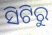
ସିଟିରୁ